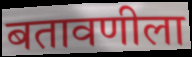
बतावणीला